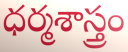
ధర్మశాస్త్రం